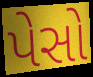
પેસો